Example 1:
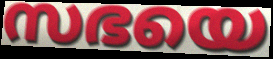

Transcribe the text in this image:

സഭയെ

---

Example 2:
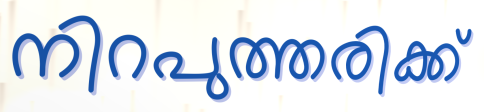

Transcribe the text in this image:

നിറപുത്തരിക്ക്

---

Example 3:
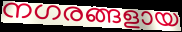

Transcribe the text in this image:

നഗരങ്ങളായ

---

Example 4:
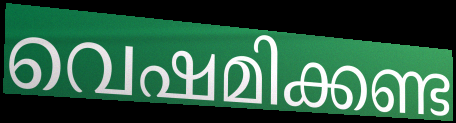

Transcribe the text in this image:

വെഷമിക്കണ്ട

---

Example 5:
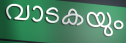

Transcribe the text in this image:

വാടകയും